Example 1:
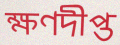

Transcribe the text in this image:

ক্ষণদীপ্ত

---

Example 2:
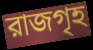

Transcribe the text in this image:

রাজগৃহ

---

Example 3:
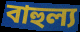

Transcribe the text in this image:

বাহুল্য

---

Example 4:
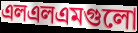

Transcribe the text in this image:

এলএলএমগুলো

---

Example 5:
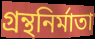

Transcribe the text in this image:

গ্রন্থনির্মাতা